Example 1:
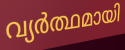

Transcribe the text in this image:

വ്യർത്ഥമായി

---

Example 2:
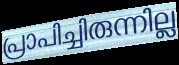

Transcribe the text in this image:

പ്രാപിച്ചിരുന്നില്ല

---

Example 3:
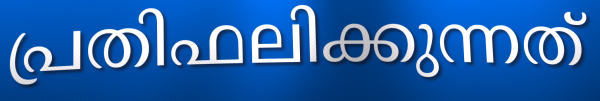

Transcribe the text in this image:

പ്രതിഫലിക്കുന്നത്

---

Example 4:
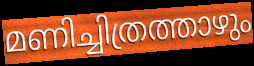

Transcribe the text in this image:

മണിച്ചിത്രത്താഴും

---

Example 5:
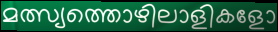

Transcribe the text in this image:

മത്സ്യത്തൊഴിലാളികളോ